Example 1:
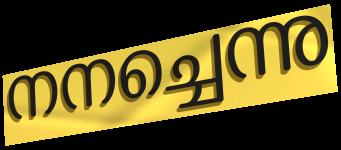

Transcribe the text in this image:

നനച്ചെന്നു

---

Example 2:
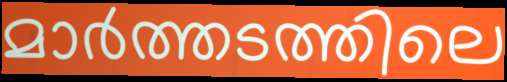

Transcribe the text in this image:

മാർത്തടത്തിലെ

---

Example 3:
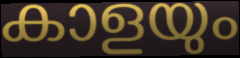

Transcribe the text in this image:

കാളയും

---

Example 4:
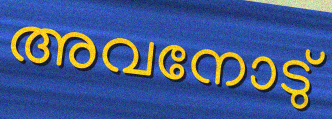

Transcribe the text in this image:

അവനോടു്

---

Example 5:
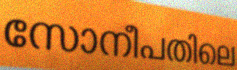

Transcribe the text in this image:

സോനീപതിലെ